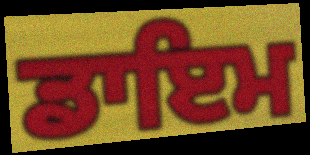
ਡਾਇਮ